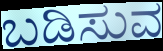
ಬಡಿಸುವ